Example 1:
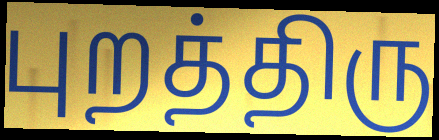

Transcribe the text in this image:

புறத்திரு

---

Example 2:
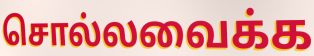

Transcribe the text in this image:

சொல்லவைக்க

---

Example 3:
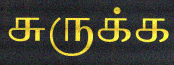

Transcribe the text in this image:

சுருக்க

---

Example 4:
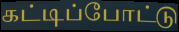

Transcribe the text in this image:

கட்டிப்போட்டு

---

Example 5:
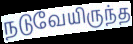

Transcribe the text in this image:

நடுவேயிருந்த